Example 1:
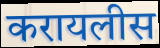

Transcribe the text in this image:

करायलीस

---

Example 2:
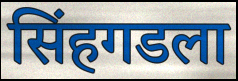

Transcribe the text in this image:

सिंहगडला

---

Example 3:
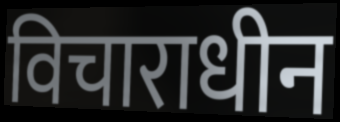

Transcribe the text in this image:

विचाराधीन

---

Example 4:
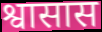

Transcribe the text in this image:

श्वासास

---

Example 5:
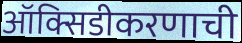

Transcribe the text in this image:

ऑक्सिडीकरणाची